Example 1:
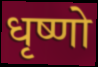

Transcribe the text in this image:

धृष्णो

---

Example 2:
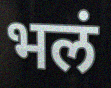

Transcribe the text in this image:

भलं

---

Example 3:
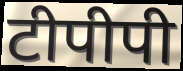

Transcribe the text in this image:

टीपीपी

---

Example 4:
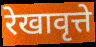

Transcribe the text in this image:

रेखावृत्ते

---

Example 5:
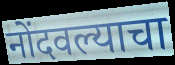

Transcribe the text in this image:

नोंदवल्याचा